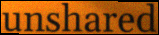
unshared